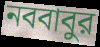
নববাবুর